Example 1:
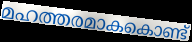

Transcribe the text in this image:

മഹത്തരമാകകൊണ്ട്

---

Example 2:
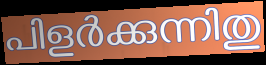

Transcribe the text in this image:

പിളർക്കുന്നിതു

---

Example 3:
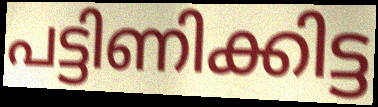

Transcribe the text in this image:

പട്ടിണിക്കിട്ട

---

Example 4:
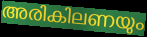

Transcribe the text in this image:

അരികിലണയും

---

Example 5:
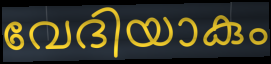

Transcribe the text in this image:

വേദിയാകും